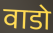
वाडो